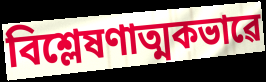
বিশ্লেষণাত্মকভাৱে